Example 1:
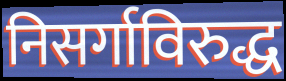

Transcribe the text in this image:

निसर्गाविरुद्ध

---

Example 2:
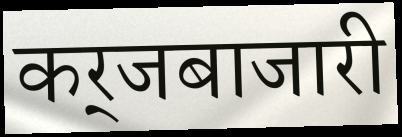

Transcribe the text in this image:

कर्जबाजारी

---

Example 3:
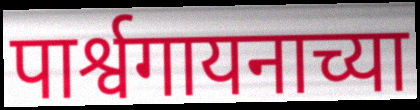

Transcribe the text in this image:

पार्श्वगायनाच्या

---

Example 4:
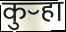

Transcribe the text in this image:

कुऱ्हा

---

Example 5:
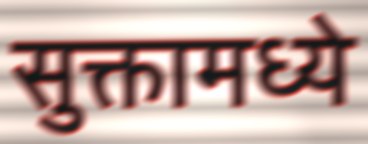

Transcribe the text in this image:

सुक्तामध्ये